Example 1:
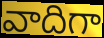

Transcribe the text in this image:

వాదిగా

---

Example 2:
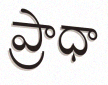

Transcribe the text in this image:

ప్రాధా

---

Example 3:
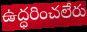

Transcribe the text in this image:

ఉద్ధరించలేరు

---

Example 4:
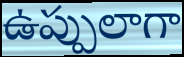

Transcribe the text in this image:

ఉప్పులాగా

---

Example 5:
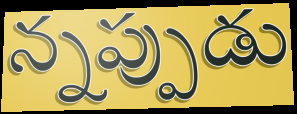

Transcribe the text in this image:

న్నప్పుడు